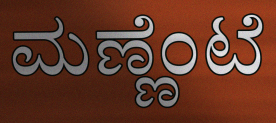
ಮಣ್ಣೆಂಟೆ